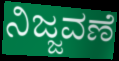
ನಿಜ್ಜವಣೆ